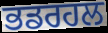
ਭਡਰਹਲ